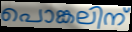
പൊങ്കലിന്